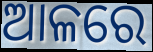
ଆଳରେ